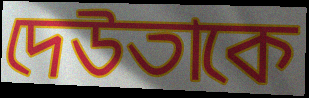
দেউতাকে